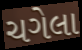
ચગેલા